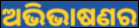
ଅଭିଭାଷଣର